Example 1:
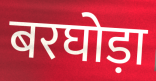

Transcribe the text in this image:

बरघोड़ा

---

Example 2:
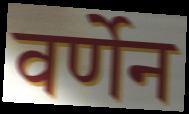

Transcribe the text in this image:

वर्णेन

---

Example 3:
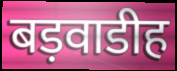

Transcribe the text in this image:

बड़वाडीह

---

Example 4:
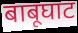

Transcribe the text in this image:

बाबूघाट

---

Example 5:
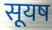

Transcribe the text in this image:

सूयष